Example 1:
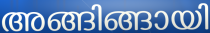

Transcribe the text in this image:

അങ്ങിങ്ങായി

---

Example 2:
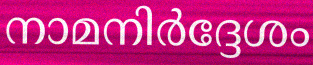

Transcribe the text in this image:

നാമനിർദ്ദേശം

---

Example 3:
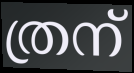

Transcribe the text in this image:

ത്രന്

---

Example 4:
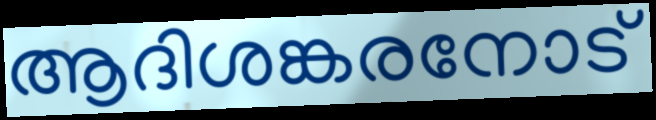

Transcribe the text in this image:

ആദിശങ്കരനോട്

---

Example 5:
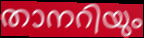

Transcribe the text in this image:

താനറിയും